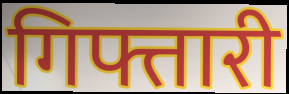
गिफ्तारी